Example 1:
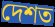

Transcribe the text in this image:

দেশত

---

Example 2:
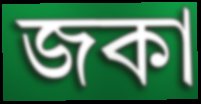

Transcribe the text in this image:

জকা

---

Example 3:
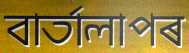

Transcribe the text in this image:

বাৰ্তালাপৰ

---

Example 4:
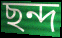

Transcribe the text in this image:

ছন্দ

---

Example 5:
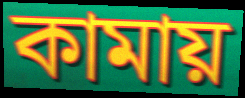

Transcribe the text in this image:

কামায়